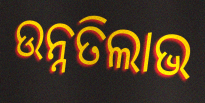
ଉନ୍ନତିଲାଭ